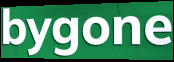
bygone